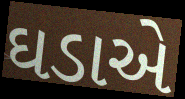
ઘડાએ